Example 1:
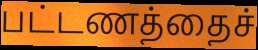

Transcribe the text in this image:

பட்டணத்தைச்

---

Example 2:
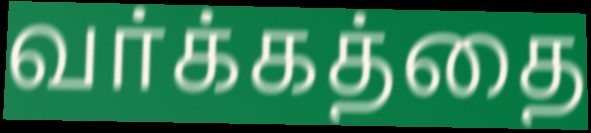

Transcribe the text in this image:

வர்க்கத்தை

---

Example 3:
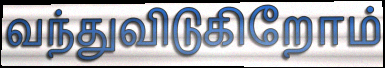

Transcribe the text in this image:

வந்துவிடுகிறோம்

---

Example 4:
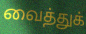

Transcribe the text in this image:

வைத்துக்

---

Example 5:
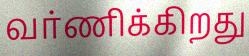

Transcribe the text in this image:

வர்ணிக்கிறது